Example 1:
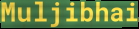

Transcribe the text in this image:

Muljibhai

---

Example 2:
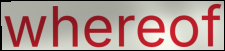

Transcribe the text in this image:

whereof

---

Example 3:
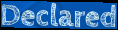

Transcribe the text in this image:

Declared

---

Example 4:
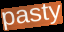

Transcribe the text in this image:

pasty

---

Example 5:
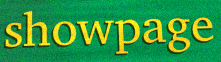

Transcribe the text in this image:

showpage